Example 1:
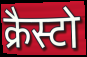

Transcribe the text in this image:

क्रैस्टो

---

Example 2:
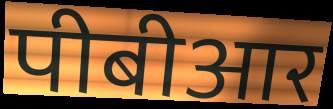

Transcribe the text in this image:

पीबीआर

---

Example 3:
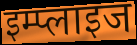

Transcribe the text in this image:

इम्प्लाइज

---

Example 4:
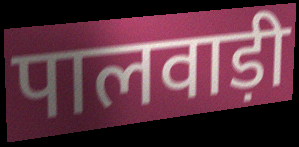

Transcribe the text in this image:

पालवाड़ी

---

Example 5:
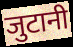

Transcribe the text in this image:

जुटानी